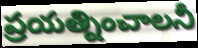
ప్రయత్నించాలనీ